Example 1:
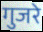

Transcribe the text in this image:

गुजरे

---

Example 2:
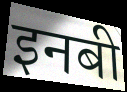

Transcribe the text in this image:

इनबी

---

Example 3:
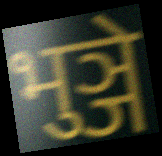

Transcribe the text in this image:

भुञ्जे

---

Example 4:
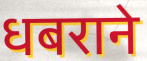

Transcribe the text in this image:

धबराने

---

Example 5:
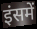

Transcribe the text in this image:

इंसमें